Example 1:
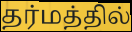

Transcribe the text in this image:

தர்மத்தில்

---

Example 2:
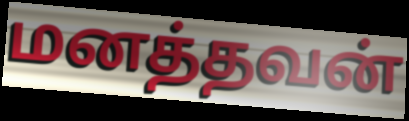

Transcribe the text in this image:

மனத்தவன்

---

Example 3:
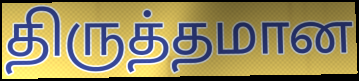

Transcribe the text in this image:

திருத்தமான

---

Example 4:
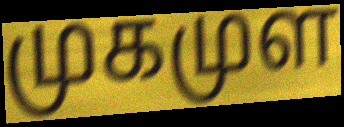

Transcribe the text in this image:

முகமுள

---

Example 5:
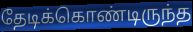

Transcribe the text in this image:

தேடிக்கொண்டிருந்த